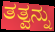
ತತ್ವನ್ನು